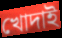
খোদাই